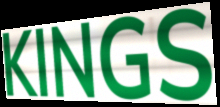
KINGS